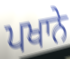
ਪਖਾਨੇ